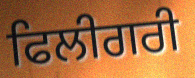
ਫਿਲੀਗਰੀ